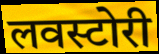
लवस्‍टोरी